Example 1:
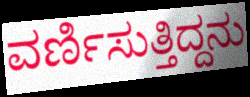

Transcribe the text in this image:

ವರ್ಣಿಸುತ್ತಿದ್ದನು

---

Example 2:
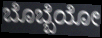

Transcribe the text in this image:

ಬೊಬ್ಬೆಯೋ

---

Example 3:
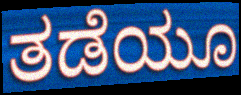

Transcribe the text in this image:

ತಡೆಯೂ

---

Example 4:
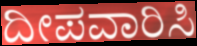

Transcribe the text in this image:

ದೀಪವಾರಿಸಿ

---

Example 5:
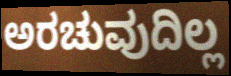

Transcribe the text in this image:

ಅರಚುವುದಿಲ್ಲ